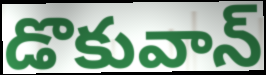
డొకువాన్